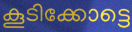
കൂടിക്കോട്ടെ